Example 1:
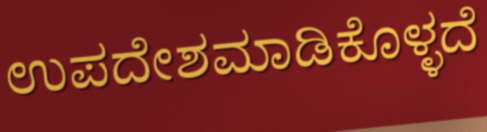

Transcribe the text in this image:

ಉಪದೇಶಮಾಡಿಕೊಳ್ಳದೆ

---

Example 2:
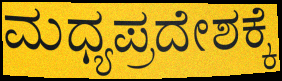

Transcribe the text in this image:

ಮಧ್ಯಪ್ರದೇಶಕ್ಕೆ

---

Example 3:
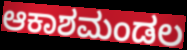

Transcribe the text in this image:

ಆಕಾಶಮಂಡಲ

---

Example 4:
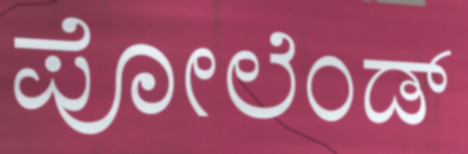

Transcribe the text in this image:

ಪೋಲೆಂಡ್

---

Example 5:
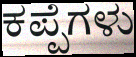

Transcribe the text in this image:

ಕಪ್ಪೆಗಳು